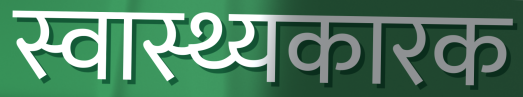
स्वास्थ्यकारक